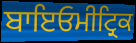
ਬਾਇਓਮੀਟ੍ਰਿਕ